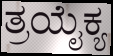
ತ್ರಯೈಕ್ಯ